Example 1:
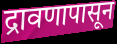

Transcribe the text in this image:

द्रावणापासून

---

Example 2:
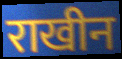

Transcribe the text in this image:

राखीन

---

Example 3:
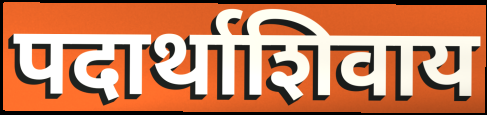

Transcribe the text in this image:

पदार्थाशिवाय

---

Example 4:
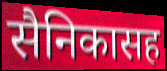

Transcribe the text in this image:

सैनिकासह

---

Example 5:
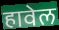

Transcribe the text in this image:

हावेल